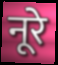
नूरे